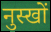
नुस्खों